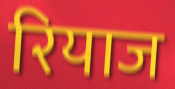
रियाज